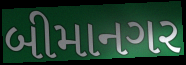
બીમાનગર